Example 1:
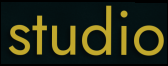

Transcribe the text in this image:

studio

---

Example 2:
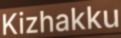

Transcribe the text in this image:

Kizhakku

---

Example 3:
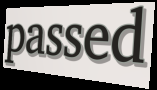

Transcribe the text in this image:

passed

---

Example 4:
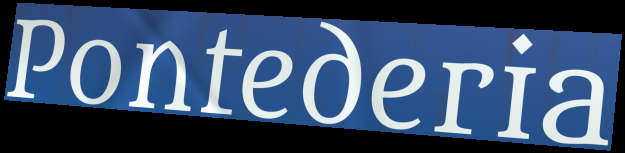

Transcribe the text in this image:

Pontederia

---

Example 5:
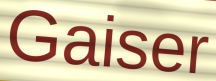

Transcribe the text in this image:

Gaiser